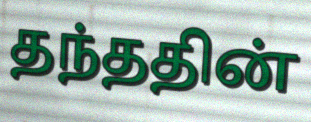
தந்ததின்